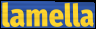
lamella